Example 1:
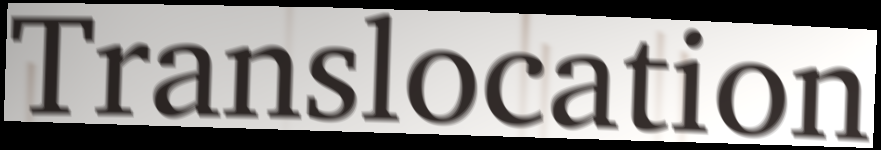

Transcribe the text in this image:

Translocation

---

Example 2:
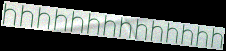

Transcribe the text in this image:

hhhhhhhhhhhhhh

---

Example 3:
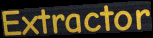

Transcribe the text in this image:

Extractor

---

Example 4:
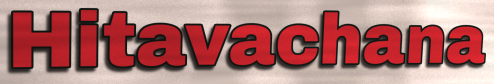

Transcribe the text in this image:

Hitavachana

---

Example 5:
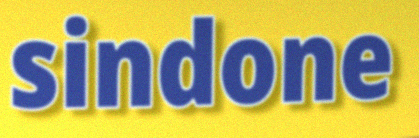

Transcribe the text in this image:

sindone